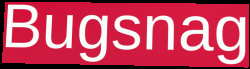
Bugsnag